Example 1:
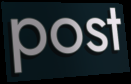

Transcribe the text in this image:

post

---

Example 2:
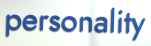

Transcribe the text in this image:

personality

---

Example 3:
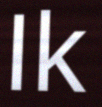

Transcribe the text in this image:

Ik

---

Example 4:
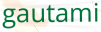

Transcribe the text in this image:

gautami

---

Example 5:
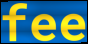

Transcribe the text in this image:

fee